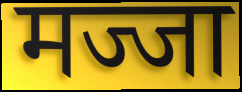
मज्जा